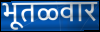
भूतळ्वार